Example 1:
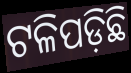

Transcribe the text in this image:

ଟଳିପଡ଼ିଛି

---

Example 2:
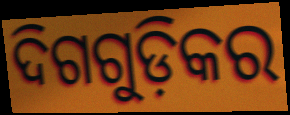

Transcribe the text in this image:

ଦିଗଗୁଡ଼ିକର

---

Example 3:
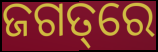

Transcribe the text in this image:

ଜଗତ୍‌ରେ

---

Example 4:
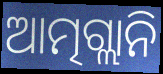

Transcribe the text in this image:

ଆତ୍ମଗ୍ଲାନି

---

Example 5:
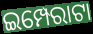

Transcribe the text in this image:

ଇମ୍ପେରାଟା